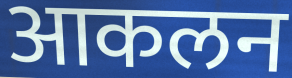
आकलन